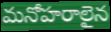
మనోహరాలైన